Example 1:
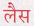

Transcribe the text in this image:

लैस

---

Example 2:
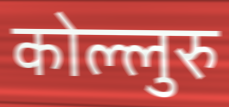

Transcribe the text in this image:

कोल्लुरु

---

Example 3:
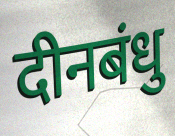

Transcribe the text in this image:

दीनबंधु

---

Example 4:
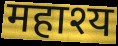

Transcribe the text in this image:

महाश्य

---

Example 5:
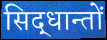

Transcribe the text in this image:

सिद्धान्तों